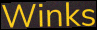
Winks